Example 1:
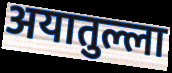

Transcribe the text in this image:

अयातुल्ला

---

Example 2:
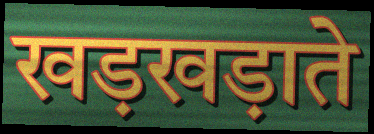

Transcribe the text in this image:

खड़खड़ाते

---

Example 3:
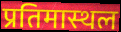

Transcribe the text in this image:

प्रतिमास्थल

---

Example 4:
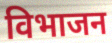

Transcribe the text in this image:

विभाजन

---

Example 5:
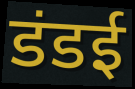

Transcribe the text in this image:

डंडई